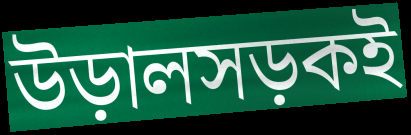
উড়ালসড়কই